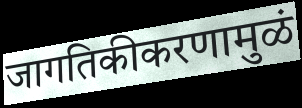
जागतिकीकरणामुळं